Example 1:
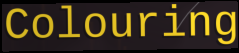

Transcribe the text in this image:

Colouring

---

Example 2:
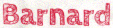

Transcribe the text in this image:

Barnard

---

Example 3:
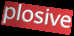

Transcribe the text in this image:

plosive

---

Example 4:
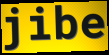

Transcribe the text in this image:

jibe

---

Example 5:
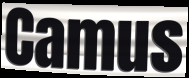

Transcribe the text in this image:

Camus